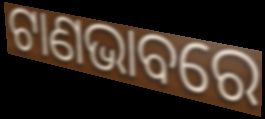
ଟାଣଭାବରେ